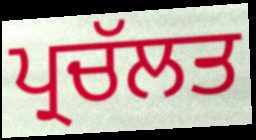
ਪ੍ਰਚੱਲਤ